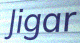
Jigar